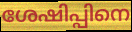
ശേഷിപ്പിനെ